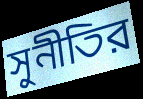
সুনীতির